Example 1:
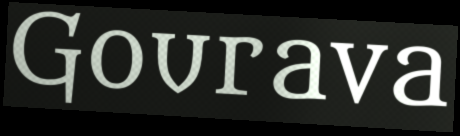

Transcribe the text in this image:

Gourava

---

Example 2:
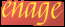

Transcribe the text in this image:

enage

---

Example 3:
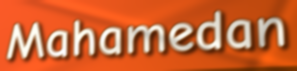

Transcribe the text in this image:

Mahamedan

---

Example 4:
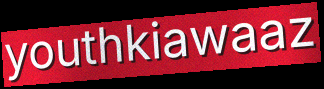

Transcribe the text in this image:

youthkiawaaz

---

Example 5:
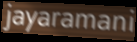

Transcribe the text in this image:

jayaramani